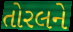
તોરલને